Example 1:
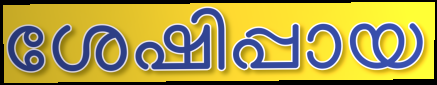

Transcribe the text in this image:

ശേഷിപ്പായ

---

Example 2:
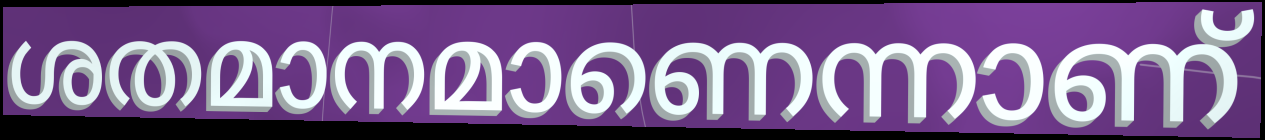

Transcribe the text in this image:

ശതമാനമാണെന്നാണ്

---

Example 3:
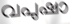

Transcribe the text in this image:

വപുഷാ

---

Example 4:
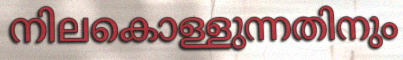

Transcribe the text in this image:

നിലകൊള്ളുന്നതിനും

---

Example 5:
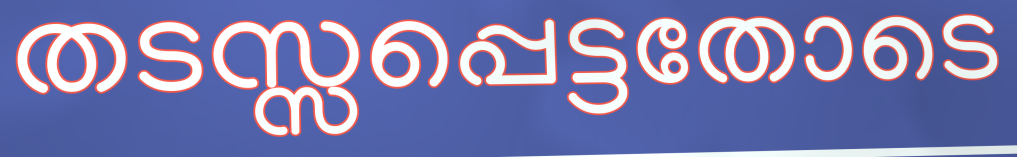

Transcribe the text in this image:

തടസ്സപ്പെട്ടതോടെ